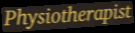
Physiotherapist